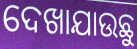
ଦେଖାଯାଉଛୁ